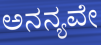
ಅನನ್ಯವೇ